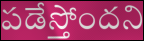
పడేస్తోందని